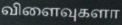
விளைவுகளா